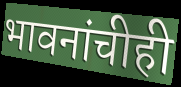
भावनांचीही